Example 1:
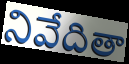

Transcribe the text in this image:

నివేదితా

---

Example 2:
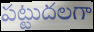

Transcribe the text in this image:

పట్టుదలగా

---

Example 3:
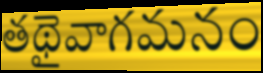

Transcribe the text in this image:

తథైవాగమనం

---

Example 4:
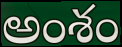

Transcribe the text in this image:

అంశం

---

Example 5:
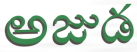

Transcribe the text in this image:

అజుడ